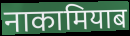
नाकामियाब